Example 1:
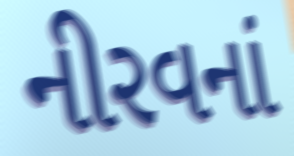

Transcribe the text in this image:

નીરવનાં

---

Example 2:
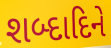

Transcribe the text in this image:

શબ્દાદિને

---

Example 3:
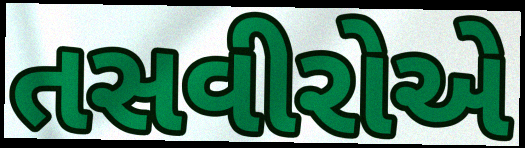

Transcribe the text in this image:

તસવીરોએ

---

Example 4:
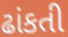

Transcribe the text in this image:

ઢાંકતી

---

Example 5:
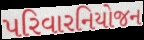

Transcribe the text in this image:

પરિવારનિયોજન